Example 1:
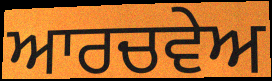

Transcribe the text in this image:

ਆਰਚਵੇਅ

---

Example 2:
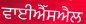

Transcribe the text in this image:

ਵਾਈਐੱਸਐਲ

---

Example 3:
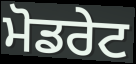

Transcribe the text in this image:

ਮੋਡਰੇਟ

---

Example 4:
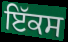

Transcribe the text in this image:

ਇੱਕਸ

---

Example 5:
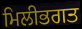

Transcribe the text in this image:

ਮਿਲੀਭਗਤ